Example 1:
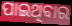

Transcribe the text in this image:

ପାଇଥିବାର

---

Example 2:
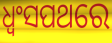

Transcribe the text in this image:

ଧ୍ବଂସପଥରେ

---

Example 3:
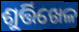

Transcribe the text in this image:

ଶୁର୍ତ୍ତିଖେଳ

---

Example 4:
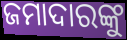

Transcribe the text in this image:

ଜମାଦାରଙ୍କୁ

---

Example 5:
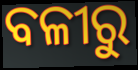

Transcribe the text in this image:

ବଳୀରୁ